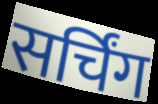
सर्चिंग